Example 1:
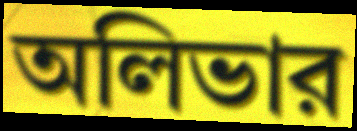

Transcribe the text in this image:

অলিভার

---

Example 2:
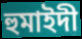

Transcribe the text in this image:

হুমাইদী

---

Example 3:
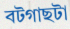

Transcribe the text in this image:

বটগাছটা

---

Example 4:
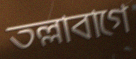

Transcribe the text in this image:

তল্লাবাগে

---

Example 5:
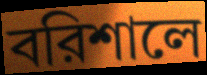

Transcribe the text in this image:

বরিশালে